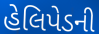
હેલિપેડની